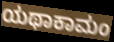
ಯಥಾಕಾಮಂ